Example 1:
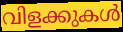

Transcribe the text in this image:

വിളക്കുകൾ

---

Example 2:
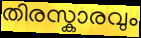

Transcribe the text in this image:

തിരസ്കാരവും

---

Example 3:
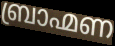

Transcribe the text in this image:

ബ്രാഹ്മണ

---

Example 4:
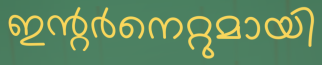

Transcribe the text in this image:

ഇന്റർനെറ്റുമായി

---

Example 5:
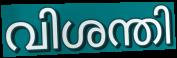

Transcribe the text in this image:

വിശന്തി